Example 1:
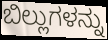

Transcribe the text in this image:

ಬಿಲ್ಲುಗಳನ್ನು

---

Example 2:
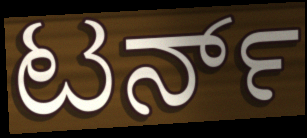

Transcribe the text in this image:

ಟರ್ನ್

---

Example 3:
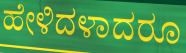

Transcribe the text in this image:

ಹೇಳಿದಳಾದರೂ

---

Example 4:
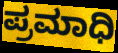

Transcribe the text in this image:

ಪ್ರಮಾಧಿ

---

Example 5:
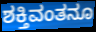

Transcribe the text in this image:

ಶಕ್ತಿವಂತನೂ